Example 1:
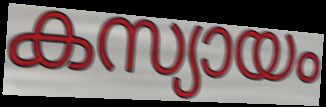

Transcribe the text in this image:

കസ്യായം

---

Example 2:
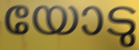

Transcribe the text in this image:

യോടു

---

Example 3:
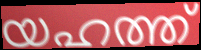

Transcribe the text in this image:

യഹത്ത്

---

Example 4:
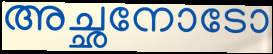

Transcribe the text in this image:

അച്ഛനോടോ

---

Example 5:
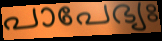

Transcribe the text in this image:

പാപേഭ്യഃ